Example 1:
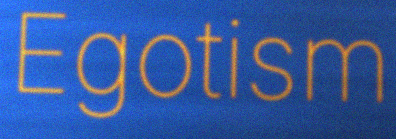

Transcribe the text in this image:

Egotism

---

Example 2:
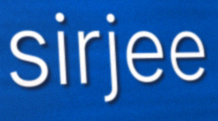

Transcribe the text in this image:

sirjee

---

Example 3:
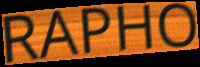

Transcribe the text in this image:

RAPHO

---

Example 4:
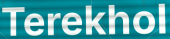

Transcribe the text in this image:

Terekhol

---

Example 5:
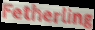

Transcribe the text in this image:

Fetherling